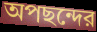
অপছন্দের